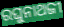
ରଘୁନାଥଜୀ